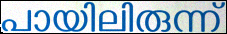
പായിലിരുന്ന്